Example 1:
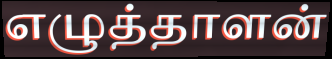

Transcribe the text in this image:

எழுத்தாளன்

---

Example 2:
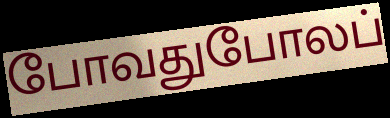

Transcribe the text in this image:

போவதுபோலப்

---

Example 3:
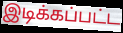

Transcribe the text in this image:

இடிக்கப்பட்ட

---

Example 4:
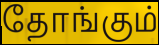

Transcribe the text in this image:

தோங்கும்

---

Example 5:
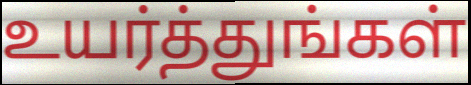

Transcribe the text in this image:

உயர்த்துங்கள்